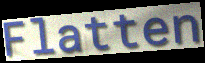
Flatten